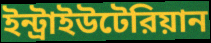
ইন্ট্রাইউটেরিয়ান